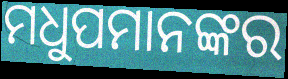
ମଧୁପମାନଙ୍କର